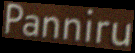
Panniru